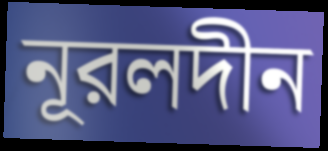
নূরলদীন